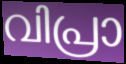
വിപ്രാ